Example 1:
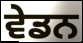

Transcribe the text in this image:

ਵੇਡਨ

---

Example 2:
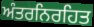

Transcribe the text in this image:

ਅੰਤਰਨਿਰਹਿਤ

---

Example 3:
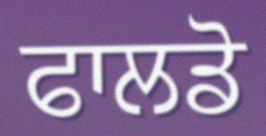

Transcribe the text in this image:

ਫਾਲਡੋ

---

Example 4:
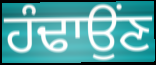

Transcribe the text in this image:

ਹੰਢਾਉਂਣ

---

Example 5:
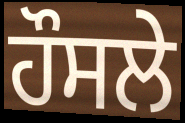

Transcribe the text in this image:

ਹੌਸਲੇ